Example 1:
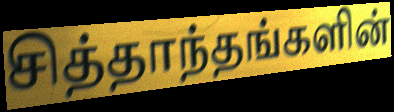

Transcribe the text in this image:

சித்தாந்தங்களின்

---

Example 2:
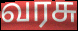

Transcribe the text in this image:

வரசு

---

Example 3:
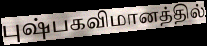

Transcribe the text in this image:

புஷ்பகவிமானத்தில்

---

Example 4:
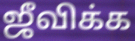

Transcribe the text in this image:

ஜீவிக்க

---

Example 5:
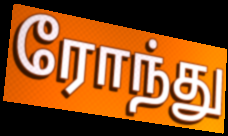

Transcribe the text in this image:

ரோந்து